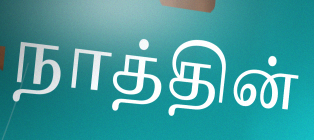
நாத்தின்